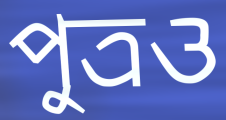
পুত্রও